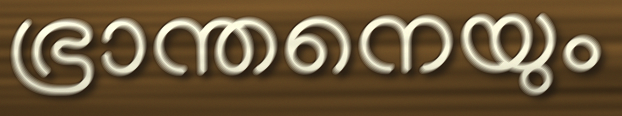
ഭ്രാന്തനെയും